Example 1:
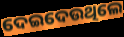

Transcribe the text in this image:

ଦେଇଦେଉଥିଲେ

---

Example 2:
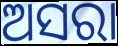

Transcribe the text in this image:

ଅସରା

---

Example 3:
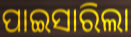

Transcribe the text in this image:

ପାଇସାରିଲା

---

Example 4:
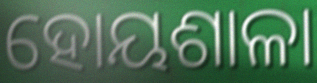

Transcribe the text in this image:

ହୋୟଶାଳା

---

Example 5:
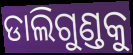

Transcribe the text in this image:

ଡାଲିଗୁଣ୍ଡକୁ